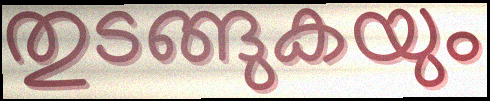
തുടങ്ങുകയും